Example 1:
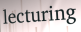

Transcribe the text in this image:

lecturing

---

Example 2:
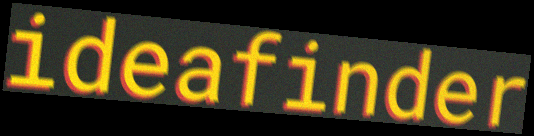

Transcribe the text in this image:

ideafinder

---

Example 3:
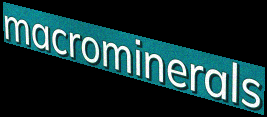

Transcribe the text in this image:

macrominerals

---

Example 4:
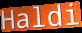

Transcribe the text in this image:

Haldi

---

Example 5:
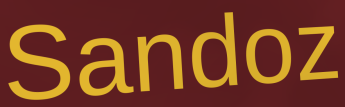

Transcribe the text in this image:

Sandoz